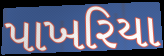
પાખરિયા